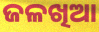
ଜଳଖିଆ